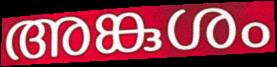
അങ്കുശം